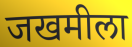
जखमीला